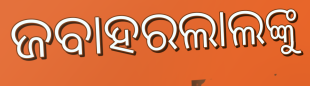
ଜବାହରଲାଲଙ୍କୁ